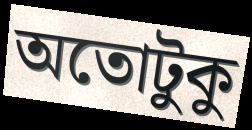
অতোটুকু